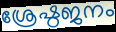
ശ്രേഷ്ഠജനം